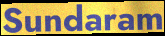
Sundaram